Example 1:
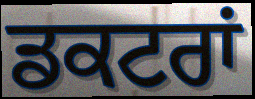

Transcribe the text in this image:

ਡਕਟਰਾਂ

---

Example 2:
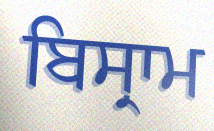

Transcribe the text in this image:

ਬਿਸ੍ਰਾਮ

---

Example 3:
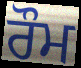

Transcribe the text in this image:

ਰੌਮ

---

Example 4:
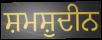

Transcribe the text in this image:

ਸ਼ਮਸ਼ੁਦੀਨ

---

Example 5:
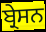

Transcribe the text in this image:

ਬ੍ਰੇਸਨ